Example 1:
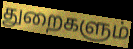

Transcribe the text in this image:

துறைகளும்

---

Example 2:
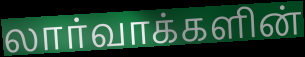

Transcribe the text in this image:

லார்வாக்களின்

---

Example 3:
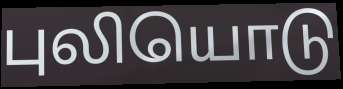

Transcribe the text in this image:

புலியொடு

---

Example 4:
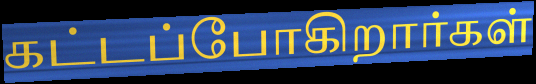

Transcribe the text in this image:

கட்டப்போகிறார்கள்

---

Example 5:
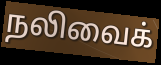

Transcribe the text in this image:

நலிவைக்